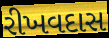
રીખવદાસ